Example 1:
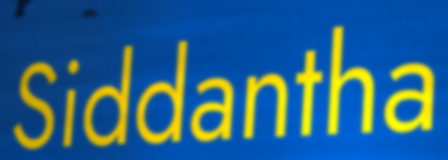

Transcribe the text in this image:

Siddantha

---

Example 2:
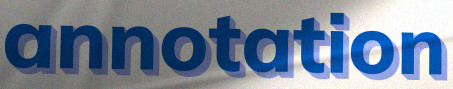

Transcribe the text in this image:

annotation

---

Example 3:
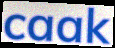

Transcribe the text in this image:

caak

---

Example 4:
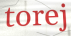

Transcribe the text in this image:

torej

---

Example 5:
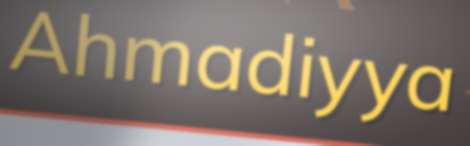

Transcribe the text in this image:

Ahmadiyya